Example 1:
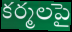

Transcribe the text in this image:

కర్మలపై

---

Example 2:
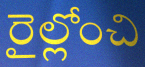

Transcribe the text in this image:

రైల్లోంచి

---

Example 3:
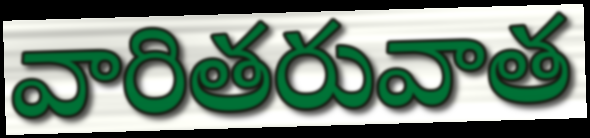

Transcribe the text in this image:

వారితరువాత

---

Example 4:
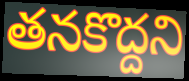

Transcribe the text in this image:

తనకొద్దని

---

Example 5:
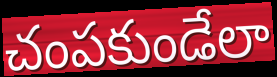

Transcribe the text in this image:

చంపకుండేలా